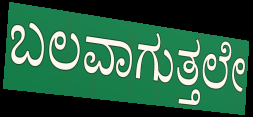
ಬಲವಾಗುತ್ತಲೇ